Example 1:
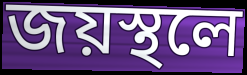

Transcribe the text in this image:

জয়স্থলে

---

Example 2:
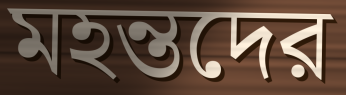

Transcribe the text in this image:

মহন্তদের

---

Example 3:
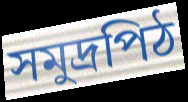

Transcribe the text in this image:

সমুদ্রপিঠ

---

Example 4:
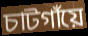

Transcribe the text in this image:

চাটগাঁয়ে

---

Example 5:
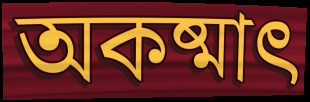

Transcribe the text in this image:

অকষ্মাৎ